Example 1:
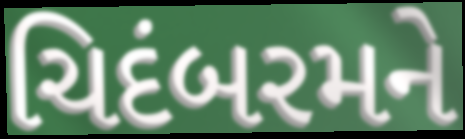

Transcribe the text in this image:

ચિદંબરમને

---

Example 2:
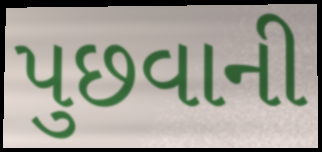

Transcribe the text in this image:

પુછવાની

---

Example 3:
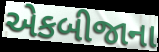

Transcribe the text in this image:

એકબીજાના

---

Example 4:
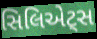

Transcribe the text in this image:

સિલિએટ્સ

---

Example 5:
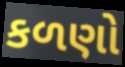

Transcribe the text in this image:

કળણો